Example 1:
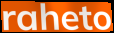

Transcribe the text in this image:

raheto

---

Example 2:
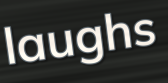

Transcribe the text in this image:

laughs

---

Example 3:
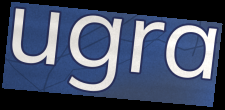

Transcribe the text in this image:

ugra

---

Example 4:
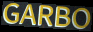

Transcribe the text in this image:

GARBO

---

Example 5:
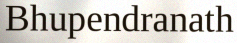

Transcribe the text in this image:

Bhupendranath